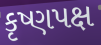
કૃષ્ણપક્ષ